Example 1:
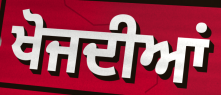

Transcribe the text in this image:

ਖੋਜਦੀਆਂ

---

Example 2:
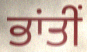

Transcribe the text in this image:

ਭਾਂਤੀਂ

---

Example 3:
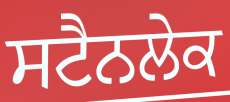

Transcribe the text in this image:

ਸਟੈਨਲੇਕ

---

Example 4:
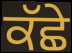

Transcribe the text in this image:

ਕੱਛੇ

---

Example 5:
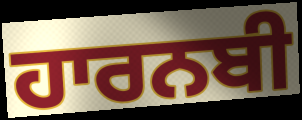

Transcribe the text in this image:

ਹਾਰਨਬੀ